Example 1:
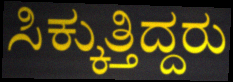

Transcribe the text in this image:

ಸಿಕ್ಕುತ್ತಿದ್ದರು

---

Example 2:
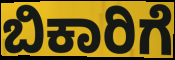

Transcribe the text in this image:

ಬಿಕಾರಿಗೆ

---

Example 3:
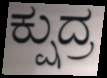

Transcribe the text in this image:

ಕ್ಷುದ್ರ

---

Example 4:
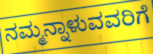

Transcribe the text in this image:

ನಮ್ಮನ್ನಾಳುವವರಿಗೆ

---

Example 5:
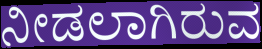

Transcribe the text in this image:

ನೀಡಲಾಗಿರುವ